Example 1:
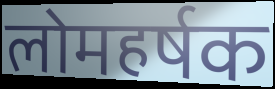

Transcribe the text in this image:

लोमहर्षक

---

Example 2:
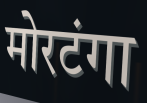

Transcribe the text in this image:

मोरटंगा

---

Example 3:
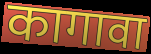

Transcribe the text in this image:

कागावा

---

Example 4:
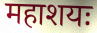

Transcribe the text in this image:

महाशयः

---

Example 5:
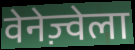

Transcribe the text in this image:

वेनेज़्वेला